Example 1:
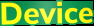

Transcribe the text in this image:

Device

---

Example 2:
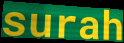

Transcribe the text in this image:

surah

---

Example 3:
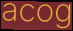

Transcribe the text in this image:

acog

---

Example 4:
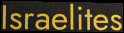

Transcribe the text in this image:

Israelites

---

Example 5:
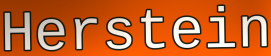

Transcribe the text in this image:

Herstein